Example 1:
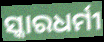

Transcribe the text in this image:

ସ୍କାରଧର୍ମୀ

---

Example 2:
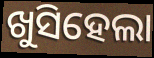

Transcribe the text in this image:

ଖୁସିହେଲା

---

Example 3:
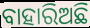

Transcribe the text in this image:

ବାହାରିଅଛି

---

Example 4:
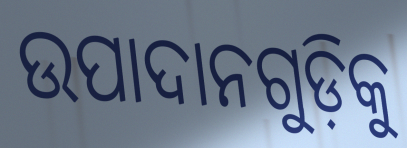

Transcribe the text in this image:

ଉପାଦାନଗୁଡ଼ିକୁ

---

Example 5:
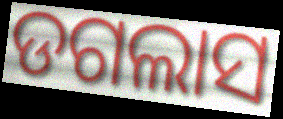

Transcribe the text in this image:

ଡଗଲାସ